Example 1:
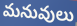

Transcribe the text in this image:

మనువులు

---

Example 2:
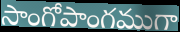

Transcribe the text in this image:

సాంగోపాంగముగా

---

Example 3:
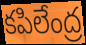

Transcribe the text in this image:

కపిలేంద్ర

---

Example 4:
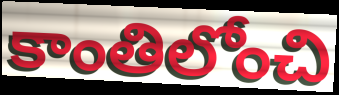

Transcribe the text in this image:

కాంతిలోంచి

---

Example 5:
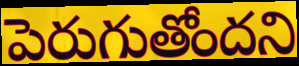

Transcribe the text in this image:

పెరుగుతోందని